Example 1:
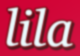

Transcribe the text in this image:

lila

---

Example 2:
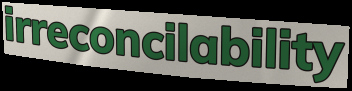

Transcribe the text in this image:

irreconcilability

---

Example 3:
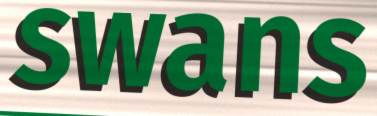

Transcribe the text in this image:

swans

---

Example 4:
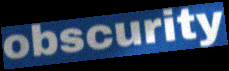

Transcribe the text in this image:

obscurity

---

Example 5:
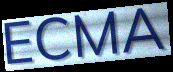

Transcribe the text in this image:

ECMA